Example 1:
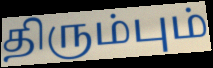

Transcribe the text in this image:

திரும்பும்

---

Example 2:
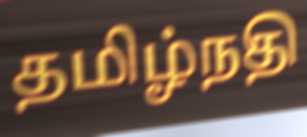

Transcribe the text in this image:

தமிழ்நதி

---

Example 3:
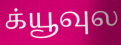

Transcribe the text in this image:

க்யூவுல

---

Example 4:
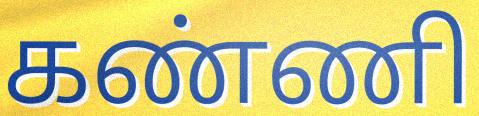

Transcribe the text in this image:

கண்ணி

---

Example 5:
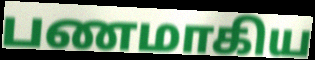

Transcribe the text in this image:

பணமாகிய